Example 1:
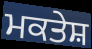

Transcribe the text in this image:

ਮਕਤੇਸ਼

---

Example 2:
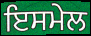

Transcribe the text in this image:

ਇਸਮੇਲ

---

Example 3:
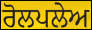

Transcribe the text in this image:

ਰੋਲਪਲੇਅ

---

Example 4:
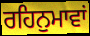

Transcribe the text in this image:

ਰਹਿਨੁਮਾਵਾਂ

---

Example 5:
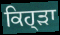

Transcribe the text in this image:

ਕਿਹ੍ੜਾ